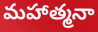
మహాత్మనా